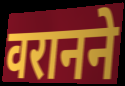
वरानने